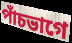
পাঁচভাগে